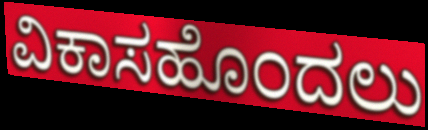
ವಿಕಾಸಹೊಂದಲು